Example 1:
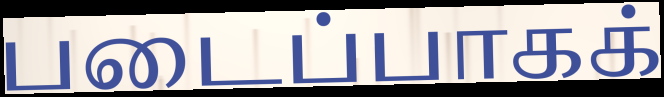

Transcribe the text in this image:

படைப்பாகக்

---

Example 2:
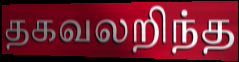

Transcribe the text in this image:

தகவலறிந்த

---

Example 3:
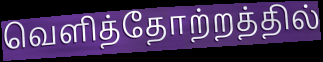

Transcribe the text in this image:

வெளித்தோற்றத்தில்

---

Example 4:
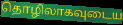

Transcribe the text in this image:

தொழிலாகவுடைய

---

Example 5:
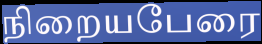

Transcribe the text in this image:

நிறையபேரை